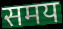
समय